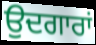
ਉਦਗਾਰਾਂ